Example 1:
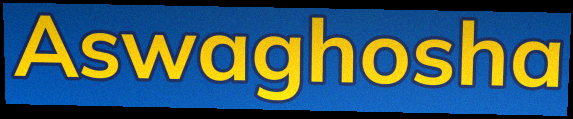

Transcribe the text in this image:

Aswaghosha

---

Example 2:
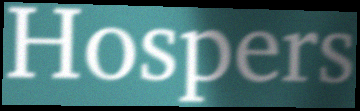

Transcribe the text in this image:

Hospers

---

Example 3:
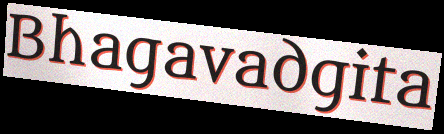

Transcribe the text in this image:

Bhagavadgita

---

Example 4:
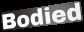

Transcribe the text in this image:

Bodied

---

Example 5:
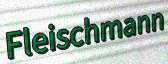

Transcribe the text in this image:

Fleischmann